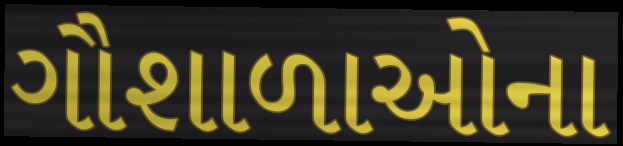
ગૌશાળાઓના